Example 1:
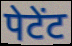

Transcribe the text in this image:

पेटेंट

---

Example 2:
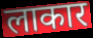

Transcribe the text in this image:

लाकार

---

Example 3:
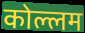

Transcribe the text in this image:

कोल्लम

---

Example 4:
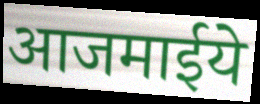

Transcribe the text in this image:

आजमाईये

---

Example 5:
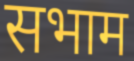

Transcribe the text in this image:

सभाम